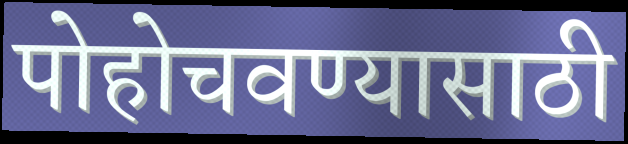
पोहोचवण्यासाठी